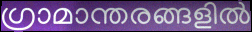
ഗ്രാമാന്തരങ്ങളിൽ